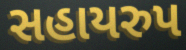
સહાયરુપ